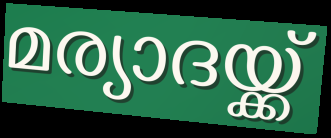
മര്യാദയ്ക്ക്